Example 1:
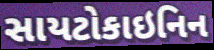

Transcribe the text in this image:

સાયટોકાઇનિન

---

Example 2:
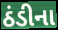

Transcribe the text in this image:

ઠંડીના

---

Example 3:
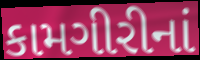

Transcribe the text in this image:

કામગીરીનાં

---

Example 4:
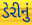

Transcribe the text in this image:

ડેરીનું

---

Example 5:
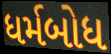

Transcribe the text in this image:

ધર્મબોધ